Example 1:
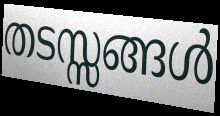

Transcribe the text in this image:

തടസ്സങ്ങൾ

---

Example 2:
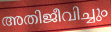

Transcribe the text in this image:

അതിജീവിച്ചും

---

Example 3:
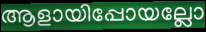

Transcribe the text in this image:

ആളായിപ്പോയല്ലോ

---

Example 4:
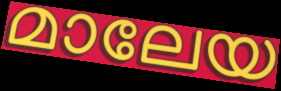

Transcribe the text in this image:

മാലേയ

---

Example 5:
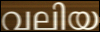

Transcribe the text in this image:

വലിയ